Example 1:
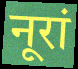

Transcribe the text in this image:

नूरां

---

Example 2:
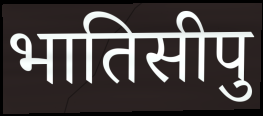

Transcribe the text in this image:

भातिसीपु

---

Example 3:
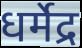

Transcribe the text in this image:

धर्मेद्र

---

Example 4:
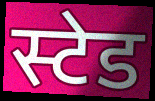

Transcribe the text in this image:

स्टेड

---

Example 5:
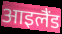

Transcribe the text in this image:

आइलैंड